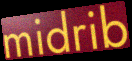
midrib